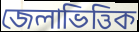
জেলাভিত্তিক